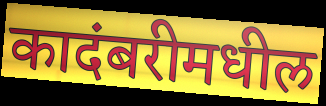
कादंबरीमधील